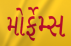
મોર્ફેમ્સ